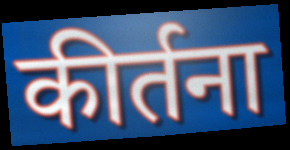
कीर्तना